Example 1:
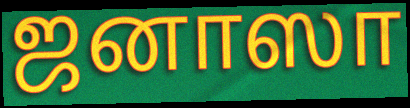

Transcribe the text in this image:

ஜனாஸா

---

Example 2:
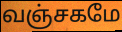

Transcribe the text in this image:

வஞ்சகமே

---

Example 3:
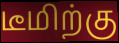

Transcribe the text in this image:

டீமிற்கு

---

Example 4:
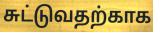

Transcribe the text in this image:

சுட்டுவதற்காக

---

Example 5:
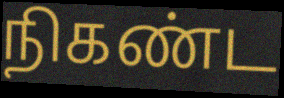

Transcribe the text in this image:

நிகண்ட